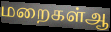
மறைகள்ஆ